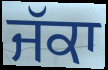
ਜੱਕਾ